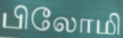
பிலோமி